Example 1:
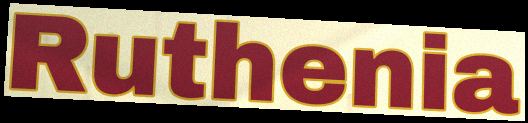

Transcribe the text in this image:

Ruthenia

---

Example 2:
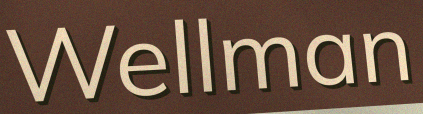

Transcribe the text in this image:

Wellman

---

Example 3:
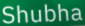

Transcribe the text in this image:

Shubha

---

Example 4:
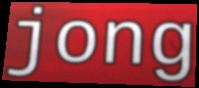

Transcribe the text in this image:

jong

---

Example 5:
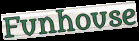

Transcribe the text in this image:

Funhouse